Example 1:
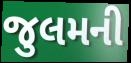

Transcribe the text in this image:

જુલમની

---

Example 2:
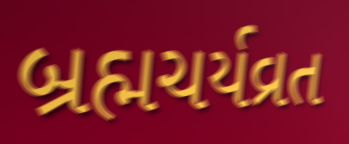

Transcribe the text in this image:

બ્રહ્મચર્યવ્રત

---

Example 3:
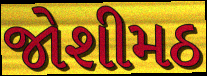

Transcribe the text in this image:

જોશીમઠ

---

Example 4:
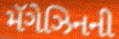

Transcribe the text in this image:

મૅગેઝિનની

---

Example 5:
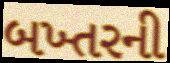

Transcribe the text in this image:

બખ્તરની